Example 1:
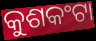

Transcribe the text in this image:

କୁଶକଂଟା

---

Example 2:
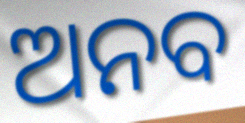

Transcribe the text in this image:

ଅନବ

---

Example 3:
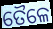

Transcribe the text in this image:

ତୈଳେ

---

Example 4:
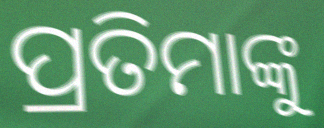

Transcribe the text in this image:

ପ୍ରତିମାଙ୍କୁ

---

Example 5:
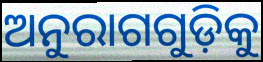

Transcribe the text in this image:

ଅନୁରାଗଗୁଡ଼ିକୁ